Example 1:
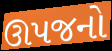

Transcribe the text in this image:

ઊપજનો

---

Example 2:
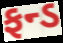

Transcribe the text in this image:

ફન્ડ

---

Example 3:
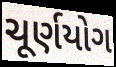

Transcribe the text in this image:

ચૂર્ણયોગ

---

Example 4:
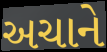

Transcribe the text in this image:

અચાને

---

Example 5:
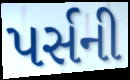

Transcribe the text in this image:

પર્સની